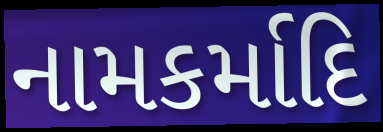
નામકર્માદિ